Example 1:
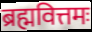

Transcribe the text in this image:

ब्रह्मवित्तमः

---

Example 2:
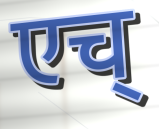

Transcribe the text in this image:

एच्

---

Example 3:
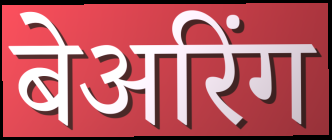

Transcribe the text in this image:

बेअरिंग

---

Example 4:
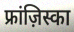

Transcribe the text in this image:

फ्रांज़िस्का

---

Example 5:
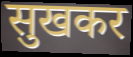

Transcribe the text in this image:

सुखकर